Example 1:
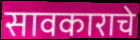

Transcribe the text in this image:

सावकाराचे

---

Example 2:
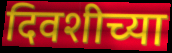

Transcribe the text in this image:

दिवशीच्या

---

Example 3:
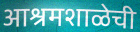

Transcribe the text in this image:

आश्रमशाळेची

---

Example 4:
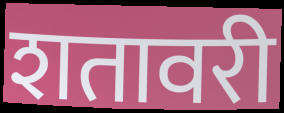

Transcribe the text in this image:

शतावरी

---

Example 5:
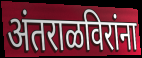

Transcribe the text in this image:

अंतराळविरांना